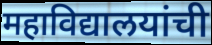
महाविद्यालयांची